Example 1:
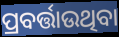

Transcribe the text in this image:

ପ୍ରବର୍ତ୍ତାଉଥିବା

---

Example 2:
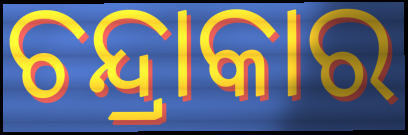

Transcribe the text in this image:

ଚନ୍ଦ୍ରାକାର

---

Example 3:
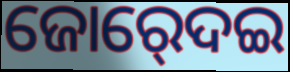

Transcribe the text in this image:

ଜୋର୍‍ଦେଇ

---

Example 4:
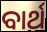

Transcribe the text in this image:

ବାର୍ଥ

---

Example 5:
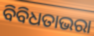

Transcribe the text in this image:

ବିବିଧତାଭରା